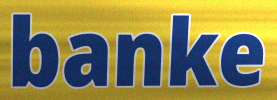
banke